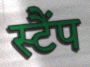
स्टैंप